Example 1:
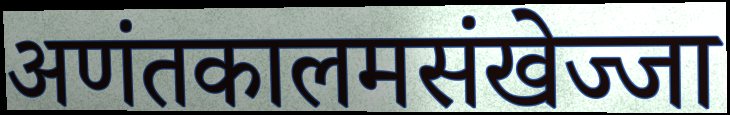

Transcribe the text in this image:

अणंतकालमसंखेज्जा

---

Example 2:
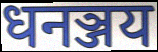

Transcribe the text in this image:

धनञ्जय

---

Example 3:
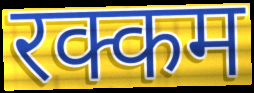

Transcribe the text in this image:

रक्कम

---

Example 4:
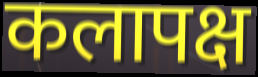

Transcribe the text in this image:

कलापक्ष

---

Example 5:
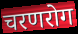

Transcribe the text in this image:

चरणरोग